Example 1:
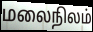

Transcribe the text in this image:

மலைநிலம்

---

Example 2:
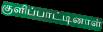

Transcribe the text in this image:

குளிப்பாட்டினாள்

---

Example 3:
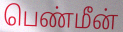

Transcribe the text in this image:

பெண்மீன்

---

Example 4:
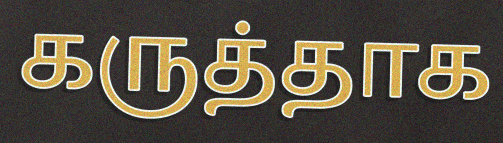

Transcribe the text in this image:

கருத்தாக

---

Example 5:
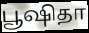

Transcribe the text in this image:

பூஷிதா